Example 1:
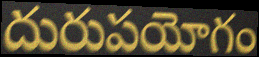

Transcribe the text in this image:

దురుపయోగం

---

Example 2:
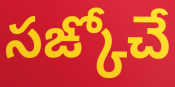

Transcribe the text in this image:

సఙ్కోచే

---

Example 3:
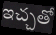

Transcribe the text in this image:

ఇచ్చతో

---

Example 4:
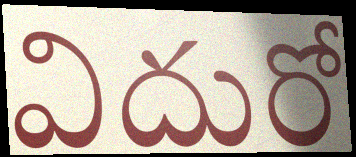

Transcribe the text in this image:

విదురో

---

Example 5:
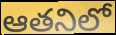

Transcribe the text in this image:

ఆతనిలో